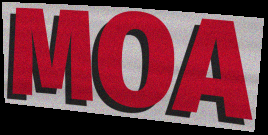
MOA